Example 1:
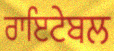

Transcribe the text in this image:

ਰਾਇਟੇਬਲ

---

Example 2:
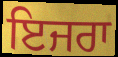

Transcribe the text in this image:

ਇਜਰਾ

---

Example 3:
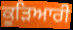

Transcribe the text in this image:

ਕੂੜਿਆਰੀ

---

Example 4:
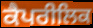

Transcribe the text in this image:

ਕੈਪਰੀਲਿਕ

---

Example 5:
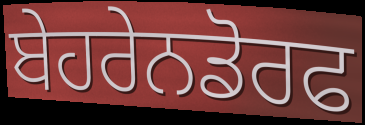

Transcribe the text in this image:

ਬੇਹਰੇਨਡੋਰਫ